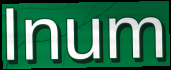
Inum